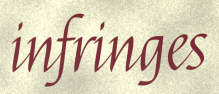
infringes